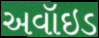
અવૉઇડ